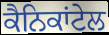
ਕੈਨਿਕਾਂਟੇਲ